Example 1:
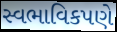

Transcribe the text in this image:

સ્વભાવિકપણે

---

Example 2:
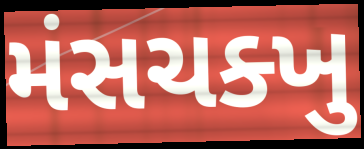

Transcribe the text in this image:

મંસચક્ખુ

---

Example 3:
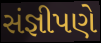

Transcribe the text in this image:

સંજ્ઞીપણે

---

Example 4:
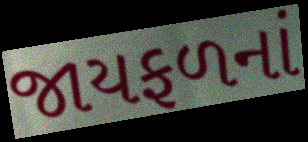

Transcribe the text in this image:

જાયફળનાં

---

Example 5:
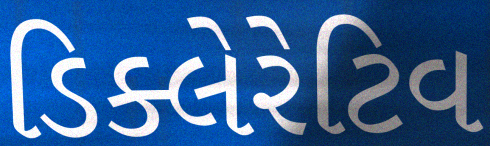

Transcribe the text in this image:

ડિક્લેરેટિવ